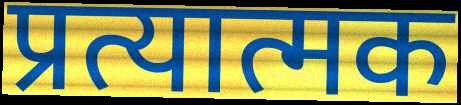
प्रत्यात्मक